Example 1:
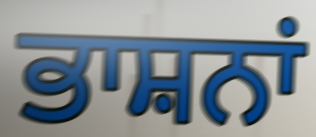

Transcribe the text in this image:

ਭਾਸ਼ਨਾਂ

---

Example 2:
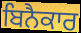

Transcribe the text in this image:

ਬਿਨੈਕਾਰ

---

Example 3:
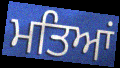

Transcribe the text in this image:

ਮਤਿਆਂ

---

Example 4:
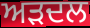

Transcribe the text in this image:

ਅੜਦਲ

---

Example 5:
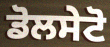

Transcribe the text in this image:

ਡੋਲਸੇਟੋ